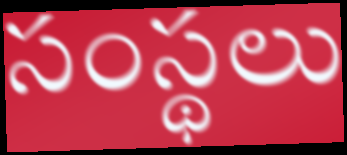
సంస్థలు